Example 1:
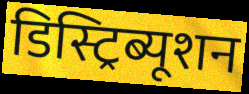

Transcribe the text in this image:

डिस्ट्रिब्यूशन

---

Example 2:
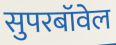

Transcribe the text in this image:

सुपरबॉवेल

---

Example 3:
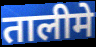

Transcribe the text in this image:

तालीमे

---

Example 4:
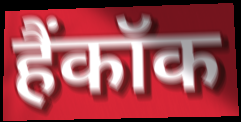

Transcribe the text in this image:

हैंकॉक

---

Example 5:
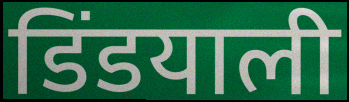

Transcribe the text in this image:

डिंडयाली